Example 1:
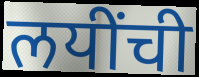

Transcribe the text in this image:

लयींची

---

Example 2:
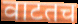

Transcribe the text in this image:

वाटतच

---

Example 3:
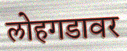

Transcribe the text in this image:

लोहगडावर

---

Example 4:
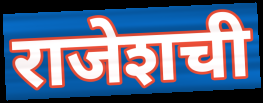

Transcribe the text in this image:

राजेशची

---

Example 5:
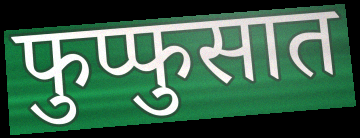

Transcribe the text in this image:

फुप्फुसात